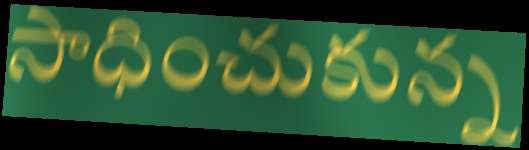
సాధించుకున్న